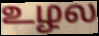
உழல